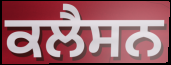
ਕਲੈਸਨ